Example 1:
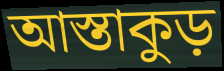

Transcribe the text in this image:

আস্তাকুড়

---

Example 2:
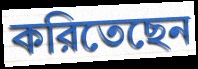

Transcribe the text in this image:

করিতেছেন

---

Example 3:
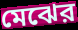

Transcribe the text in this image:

মেঝের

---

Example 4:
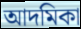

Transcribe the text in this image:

আদমিকা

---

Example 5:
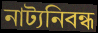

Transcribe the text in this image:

নাট্যনিবন্ধ